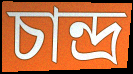
চান্দ্ৰ